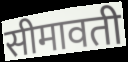
सीमावती